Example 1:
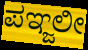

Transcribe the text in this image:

ಪಞ್ಜಲೀ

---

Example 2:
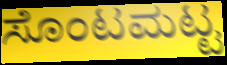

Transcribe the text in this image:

ಸೊಂಟಮಟ್ಟ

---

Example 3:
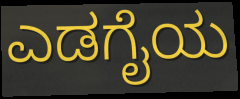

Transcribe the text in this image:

ಎಡಗೈಯ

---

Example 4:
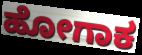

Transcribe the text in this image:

ಹೋಗಾಕ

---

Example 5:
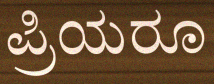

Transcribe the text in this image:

ಪ್ರಿಯರೂ